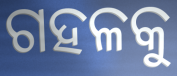
ଗହଳକୁ